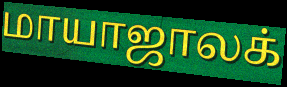
மாயாஜாலக்